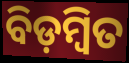
ବିଡ଼ମ୍ଵିତ